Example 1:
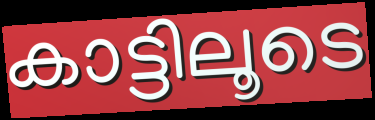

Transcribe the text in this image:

കാട്ടിലൂടെ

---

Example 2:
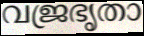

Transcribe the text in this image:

വജ്രഭൃതാ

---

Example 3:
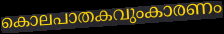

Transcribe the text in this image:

കൊലപാതകവുംകാരണം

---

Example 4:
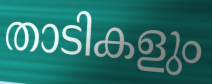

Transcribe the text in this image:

താടികളും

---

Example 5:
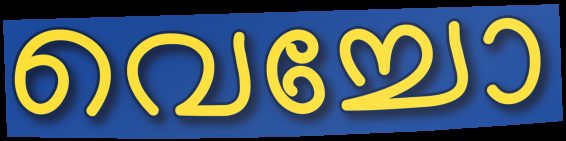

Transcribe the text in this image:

വെച്ചോ